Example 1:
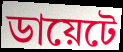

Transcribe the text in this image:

ডায়েটে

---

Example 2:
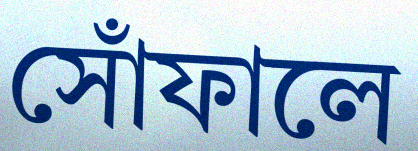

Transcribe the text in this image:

সোঁফালে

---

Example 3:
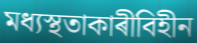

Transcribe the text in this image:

মধ্যস্থতাকাৰীবিহীন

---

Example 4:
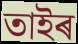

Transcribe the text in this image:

তাইৰ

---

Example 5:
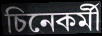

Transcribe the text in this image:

চিনেকৰ্মী